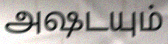
அஷடயும்